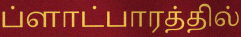
ப்ளாட்பாரத்தில்